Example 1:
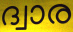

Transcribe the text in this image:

ദ്വാര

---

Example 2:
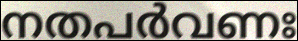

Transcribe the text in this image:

നതപർവണഃ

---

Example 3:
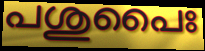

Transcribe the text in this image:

പശുപൈഃ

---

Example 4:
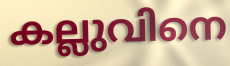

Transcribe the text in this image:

കല്ലുവിനെ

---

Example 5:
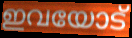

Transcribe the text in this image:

ഇവയോട്